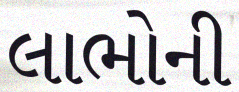
લાભોની